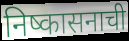
निष्कासनाची